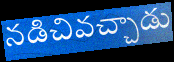
నడిచివచ్చాడు